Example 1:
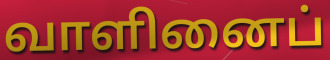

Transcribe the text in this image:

வாளினைப்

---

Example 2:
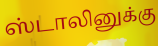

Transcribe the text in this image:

ஸ்டாலினுக்கு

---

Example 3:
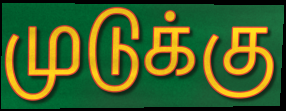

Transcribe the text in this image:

முடுக்கு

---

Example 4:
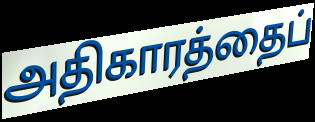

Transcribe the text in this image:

அதிகாரத்தைப்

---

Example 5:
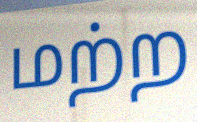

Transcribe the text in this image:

மற்ற